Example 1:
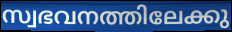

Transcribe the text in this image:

സ്വഭവനത്തിലേക്കു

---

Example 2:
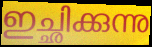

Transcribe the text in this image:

ഇച്ഛിക്കുന്നു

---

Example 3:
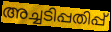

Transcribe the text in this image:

അച്ചടിപ്പതിപ്പ്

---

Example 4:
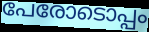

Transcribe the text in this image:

പേരോടൊപ്പം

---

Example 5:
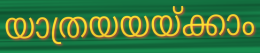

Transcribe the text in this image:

യാത്രയയയ്ക്കാം